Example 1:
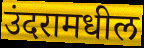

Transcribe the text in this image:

उंदरामधील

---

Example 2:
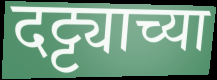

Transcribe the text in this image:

दट्ट्याच्या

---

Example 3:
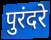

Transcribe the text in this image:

पुरंदरे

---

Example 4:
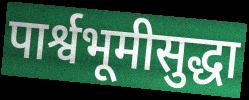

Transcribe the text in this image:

पार्श्वभूमीसुद्धा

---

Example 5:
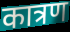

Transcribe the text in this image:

कात्रण